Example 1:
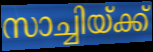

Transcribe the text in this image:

സാച്ചിയ്ക്ക്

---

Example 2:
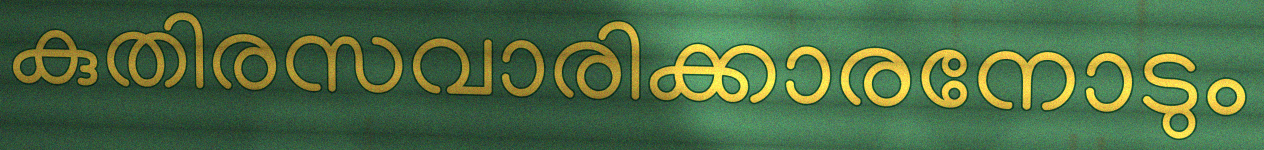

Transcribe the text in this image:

കുതിരസവാരിക്കാരനോടും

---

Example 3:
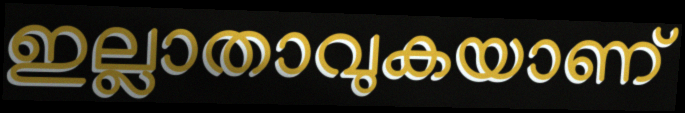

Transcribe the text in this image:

ഇല്ലാതാവുകയാണ്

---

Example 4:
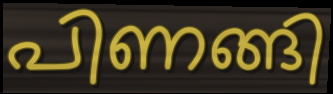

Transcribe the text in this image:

പിണങ്ങി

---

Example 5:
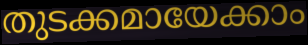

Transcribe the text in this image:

തുടക്കമായേക്കാം